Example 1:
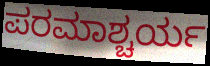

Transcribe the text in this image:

ಪರಮಾಶ್ಚರ್ಯ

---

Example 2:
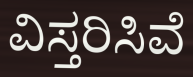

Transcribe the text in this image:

ವಿಸ್ತರಿಸಿವೆ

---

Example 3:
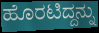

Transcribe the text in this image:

ಹೊರಟಿದ್ದನ್ನು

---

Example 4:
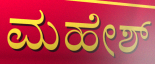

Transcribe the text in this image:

ಮಹೇಶ್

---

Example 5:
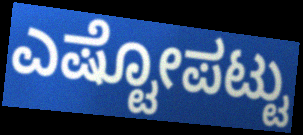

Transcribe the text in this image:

ಎಷ್ಟೋಪಟ್ಟು